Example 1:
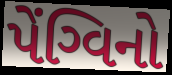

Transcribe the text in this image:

પેંગ્વિનો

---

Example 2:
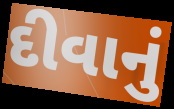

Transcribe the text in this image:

દીવાનું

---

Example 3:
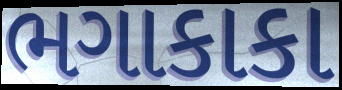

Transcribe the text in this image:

ભગાકાકા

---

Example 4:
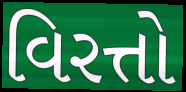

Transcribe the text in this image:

વિરત્તો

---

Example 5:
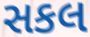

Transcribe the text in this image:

સકલ